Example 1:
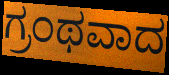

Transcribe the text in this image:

ಗ್ರಂಥವಾದ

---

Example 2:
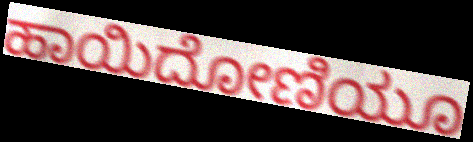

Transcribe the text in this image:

ಹಾಯಿದೋಣಿಯೂ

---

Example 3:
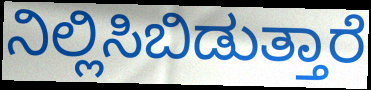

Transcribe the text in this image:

ನಿಲ್ಲಿಸಿಬಿಡುತ್ತಾರೆ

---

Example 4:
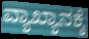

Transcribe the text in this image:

ವ್ಯಾಖ್ಯಾನಕ್ಕೆ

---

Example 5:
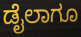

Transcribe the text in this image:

ಡೈಲಾಗೂ